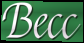
Becc